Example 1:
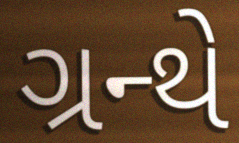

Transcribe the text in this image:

ગ્રન્થે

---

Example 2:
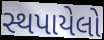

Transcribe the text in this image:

સ્થપાયેલો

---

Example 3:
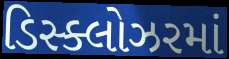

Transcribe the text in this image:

ડિસ્ક્લોઝરમાં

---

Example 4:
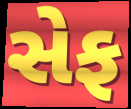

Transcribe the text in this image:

સેફ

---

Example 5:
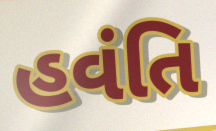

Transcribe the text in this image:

હવંતિ